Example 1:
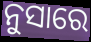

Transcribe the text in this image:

ନୁସାରେ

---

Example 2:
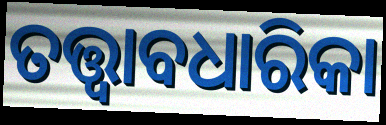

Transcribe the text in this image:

ତତ୍ତ୍ୱାବଧାରିକା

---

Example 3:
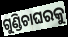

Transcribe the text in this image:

ଗୁଣ୍ଡିଚାଘରକୁ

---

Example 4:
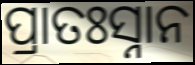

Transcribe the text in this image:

ପ୍ରାତଃସ୍ନାନ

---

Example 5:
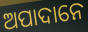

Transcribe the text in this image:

ଅପାଦାନେ